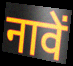
नावें